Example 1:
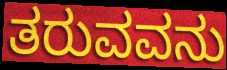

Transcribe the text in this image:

ತರುವವನು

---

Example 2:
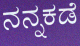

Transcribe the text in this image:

ನನ್ನಕಡೆ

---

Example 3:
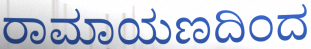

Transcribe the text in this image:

ರಾಮಾಯಣದಿಂದ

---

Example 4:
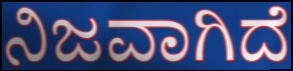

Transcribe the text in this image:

ನಿಜವಾಗಿದೆ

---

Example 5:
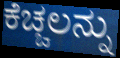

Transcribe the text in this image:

ಕೆಚ್ಚಲನ್ನು